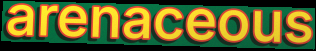
arenaceous